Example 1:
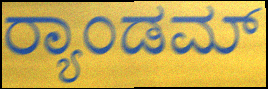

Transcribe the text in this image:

ರ್‍ಯಾಂಡಮ್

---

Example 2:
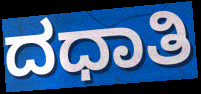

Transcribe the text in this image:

ದಧಾತಿ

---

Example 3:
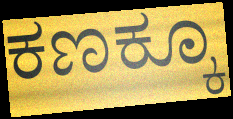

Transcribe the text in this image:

ಕಣಕ್ಕೂ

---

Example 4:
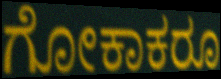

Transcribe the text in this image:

ಗೋಕಾಕರೂ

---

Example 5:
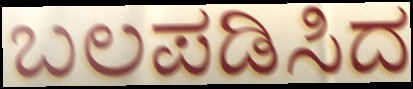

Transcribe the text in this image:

ಬಲಪಡಿಸಿದ